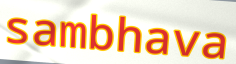
sambhava